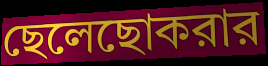
ছেলেছোকরার